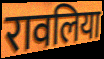
रावलिया